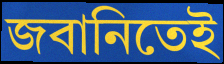
জবানিতেই